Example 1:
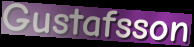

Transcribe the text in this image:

Gustafsson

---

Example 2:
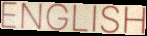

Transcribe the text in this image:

ENGLISH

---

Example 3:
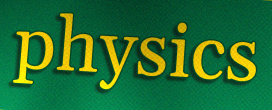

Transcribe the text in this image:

physics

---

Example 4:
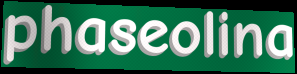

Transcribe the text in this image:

phaseolina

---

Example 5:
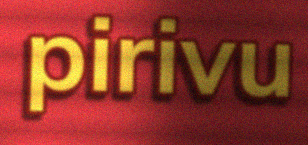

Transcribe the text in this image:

pirivu